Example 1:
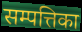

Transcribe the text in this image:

सम्पत्तिका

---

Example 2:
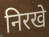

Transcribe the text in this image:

निरखे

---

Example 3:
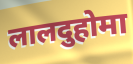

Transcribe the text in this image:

लालदुहोमा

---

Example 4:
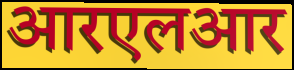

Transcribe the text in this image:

आरएलआर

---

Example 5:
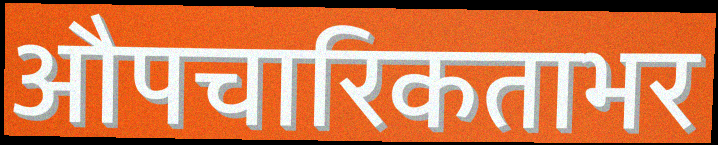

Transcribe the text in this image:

औपचारिकताभर